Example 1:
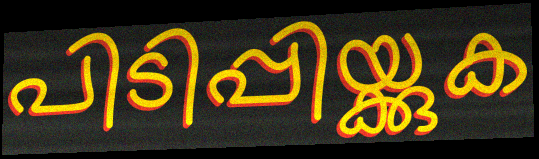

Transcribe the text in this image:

പിടിപ്പിയ്ക്കുക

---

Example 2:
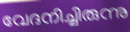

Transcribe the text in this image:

വേദനിച്ചിരുന്നു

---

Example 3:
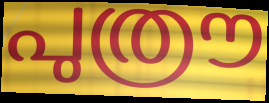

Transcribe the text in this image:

പുത്രൗ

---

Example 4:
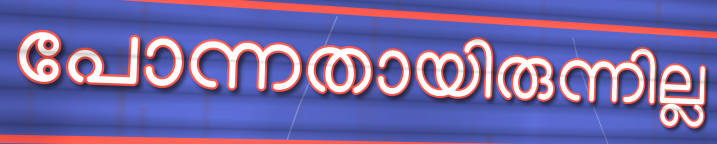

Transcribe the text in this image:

പോന്നതായിരുന്നില്ല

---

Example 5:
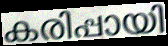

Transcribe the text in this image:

കരിപ്പായി